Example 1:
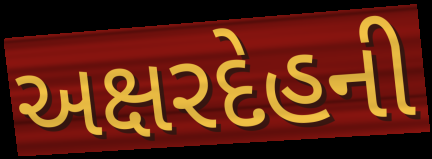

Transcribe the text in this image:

અક્ષરદેહની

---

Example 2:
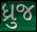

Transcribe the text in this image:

ધ્રુજ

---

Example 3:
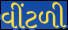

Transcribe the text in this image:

વીંટળી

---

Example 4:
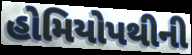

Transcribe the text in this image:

હોમિયોપથીની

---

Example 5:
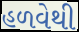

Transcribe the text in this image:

હળવેથી